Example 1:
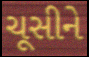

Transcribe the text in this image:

ચૂસીને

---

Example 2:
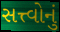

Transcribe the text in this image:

સત્ત્વોનું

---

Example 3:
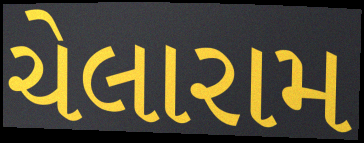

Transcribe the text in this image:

ચેલારામ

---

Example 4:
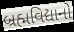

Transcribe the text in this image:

બ્રહ્મવિદ્યાનો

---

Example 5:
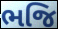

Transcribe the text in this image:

ભજિ